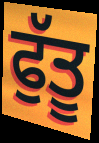
ਫੁੱਤੂ